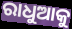
ରାଧୁଆକୁ